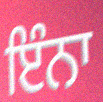
ਇੰਨਾ